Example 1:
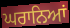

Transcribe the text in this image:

ਘਰਾਨਿਆਂ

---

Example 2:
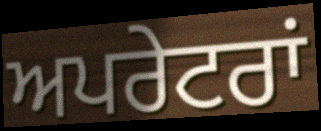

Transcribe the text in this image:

ਅਪਰੇਟਰਾਂ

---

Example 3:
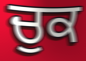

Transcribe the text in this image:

ਚੁਕ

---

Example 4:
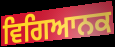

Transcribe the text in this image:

ਵਿਗਿਆਨਕ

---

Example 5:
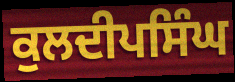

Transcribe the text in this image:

ਕੁਲਦੀਪਸਿੰਘ